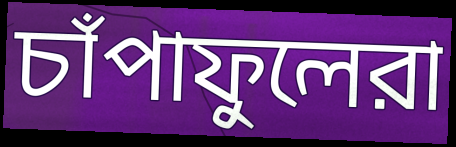
চাঁপাফুলেরা